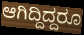
ಆಗಿದ್ದಿದ್ದರೂ